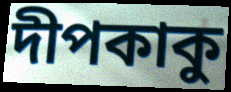
দীপকাকু